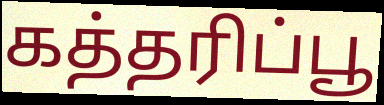
கத்தரிப்பூ